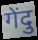
गेंदु